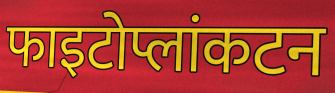
फाइटोप्लांकटन